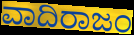
ವಾದಿರಾಜಂ